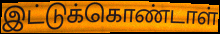
இட்டுக்கொண்டாள்